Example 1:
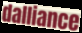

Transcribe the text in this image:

dalliance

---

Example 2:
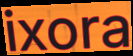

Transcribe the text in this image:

ixora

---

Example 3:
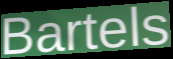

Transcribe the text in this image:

Bartels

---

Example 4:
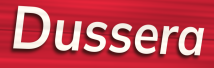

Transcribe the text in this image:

Dussera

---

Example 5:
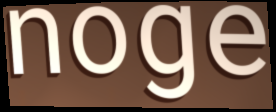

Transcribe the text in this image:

noge